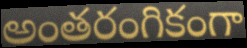
అంతరంగికంగా